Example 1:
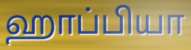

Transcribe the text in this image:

ஹாப்பியா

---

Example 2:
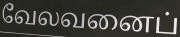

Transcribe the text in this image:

வேலவனைப்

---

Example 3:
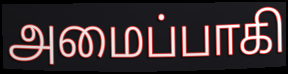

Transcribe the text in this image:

அமைப்பாகி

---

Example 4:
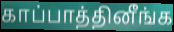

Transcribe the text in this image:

காப்பாத்தினீங்க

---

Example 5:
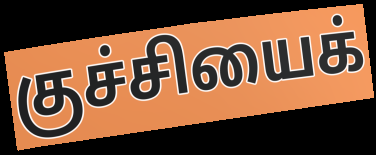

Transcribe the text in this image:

குச்சியைக்